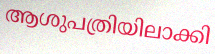
ആശുപത്രിയിലാക്കി